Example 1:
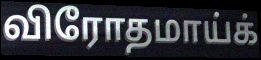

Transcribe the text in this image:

விரோதமாய்க்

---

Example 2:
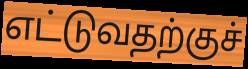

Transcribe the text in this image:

எட்டுவதற்குச்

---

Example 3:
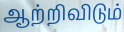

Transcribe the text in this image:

ஆற்றிவிடும்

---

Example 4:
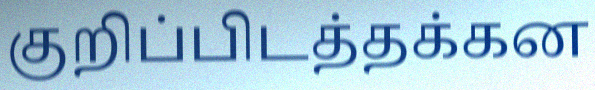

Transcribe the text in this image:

குறிப்பிடத்தக்கன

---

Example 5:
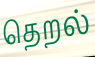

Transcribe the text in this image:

தெறல்